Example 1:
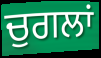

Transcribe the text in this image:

ਚੁਗਲਾਂ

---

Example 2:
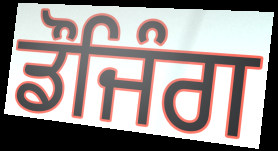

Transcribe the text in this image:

ਡੌਜਿੰਗ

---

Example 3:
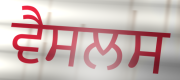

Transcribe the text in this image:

ਵੈਸਲਸ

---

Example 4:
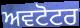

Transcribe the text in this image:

ਅਵਟੋਟਰ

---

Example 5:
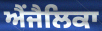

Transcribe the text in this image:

ਐਂਜੈਲਿਕਾ